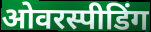
ओवरस्पीडिंग